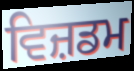
ਵਿਜ਼ਡਮ